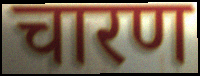
चारण